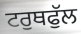
ਟਰੁਥਫੁੱਲ